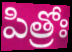
పిత్రోః